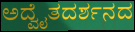
ಅದ್ವೈತದರ್ಶನದ